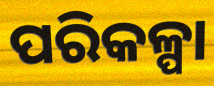
ପରିକଳ୍ପା